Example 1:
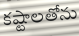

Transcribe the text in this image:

కష్టాలతోను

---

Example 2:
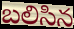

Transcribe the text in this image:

బలిసిన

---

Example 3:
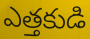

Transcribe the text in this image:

ఎత్తకుడి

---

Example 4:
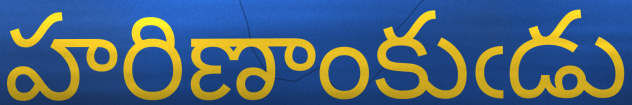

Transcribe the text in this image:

హరిణాంకుఁడు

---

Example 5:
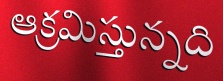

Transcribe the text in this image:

ఆక్రమిస్తున్నది